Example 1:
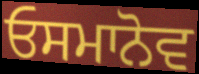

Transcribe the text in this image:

ਓਸਮਾਨੋਵ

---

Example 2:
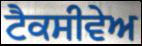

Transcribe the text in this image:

ਟੈਕਸੀਵੇਅ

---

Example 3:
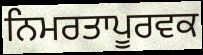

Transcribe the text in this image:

ਨਿਮਰਤਾਪੂਰਵਕ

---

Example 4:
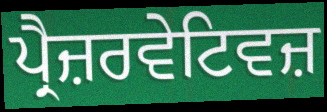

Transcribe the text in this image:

ਪ੍ਰੈਜ਼ਰਵੇਟਿਵਜ਼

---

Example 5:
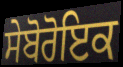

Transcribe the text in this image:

ਸੇਬੋਰੋਇਕ